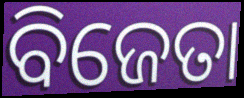
ବିଜେତା